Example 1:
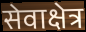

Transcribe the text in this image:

सेवाक्षेत्र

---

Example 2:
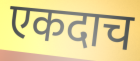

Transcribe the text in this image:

एकदाच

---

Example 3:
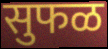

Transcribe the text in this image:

सुफळ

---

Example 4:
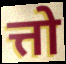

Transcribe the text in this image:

त्तो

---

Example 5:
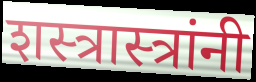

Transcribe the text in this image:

शस्त्रास्त्रांनी